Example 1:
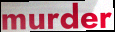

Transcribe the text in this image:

murder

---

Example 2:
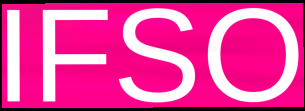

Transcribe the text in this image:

IFSO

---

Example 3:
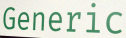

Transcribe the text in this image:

Generic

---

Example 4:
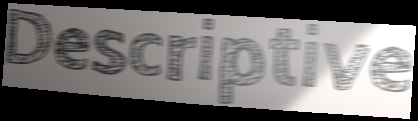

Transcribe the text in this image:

Descriptive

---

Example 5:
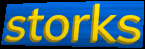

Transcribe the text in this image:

storks